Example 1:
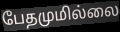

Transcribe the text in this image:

பேதமுமில்லை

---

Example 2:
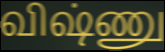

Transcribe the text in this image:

விஷ்ணு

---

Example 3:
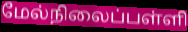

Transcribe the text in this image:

மேல்நிலைப்பள்ளி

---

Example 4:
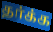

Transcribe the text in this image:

தர்க்க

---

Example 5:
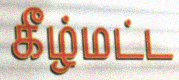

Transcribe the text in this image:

கீழ்மட்ட